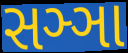
સઞ્ઞા